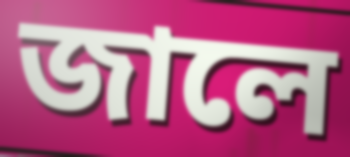
জালে